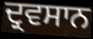
ਦ੍ਰਵਸਾਨ